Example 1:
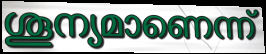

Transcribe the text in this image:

ശൂന്യമാണെന്ന്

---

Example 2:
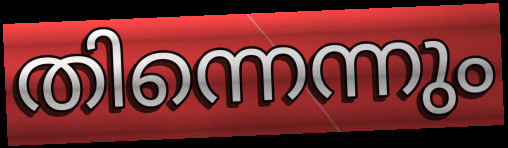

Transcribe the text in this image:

തിന്നെന്നും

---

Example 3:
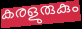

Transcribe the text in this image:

കരളുരുകും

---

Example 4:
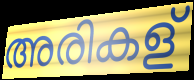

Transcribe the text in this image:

അരികള്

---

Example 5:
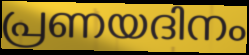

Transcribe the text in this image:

പ്രണയദിനം